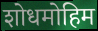
शोधमोहिम